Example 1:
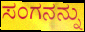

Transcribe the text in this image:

ಸಂಗನನ್ನು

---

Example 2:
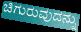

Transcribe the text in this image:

ಚಿಗುರುವುದನ್ನು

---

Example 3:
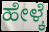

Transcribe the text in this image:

ಹೇಳ್ಕೆ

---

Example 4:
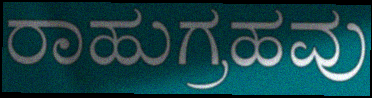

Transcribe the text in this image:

ರಾಹುಗ್ರಹವು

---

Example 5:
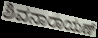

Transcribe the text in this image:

ಶಿವನಾರಾಯಣ್